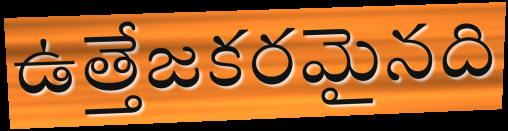
ఉత్తేజకరమైనది